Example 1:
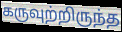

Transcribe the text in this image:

கருவுற்றிருந்த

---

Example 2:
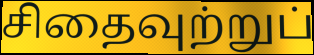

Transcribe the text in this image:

சிதைவுற்றுப்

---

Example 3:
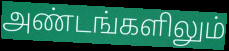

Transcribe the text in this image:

அண்டங்களிலும்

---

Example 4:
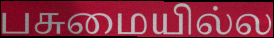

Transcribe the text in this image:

பசுமையில்ல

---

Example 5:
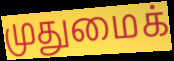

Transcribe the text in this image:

முதுமைக்